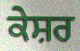
ਕੇਸ਼ਰ